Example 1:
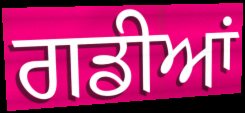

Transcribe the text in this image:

ਗਡੀਆਂ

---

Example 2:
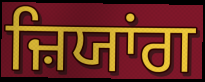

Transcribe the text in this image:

ਜ਼ਿਯਾਂਗ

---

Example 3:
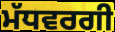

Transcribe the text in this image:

ਮੱਧਵਰਗੀ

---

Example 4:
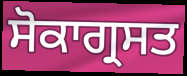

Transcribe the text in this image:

ਸੋਕਾਗ੍ਰਸਤ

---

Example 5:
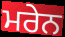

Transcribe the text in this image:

ਮਰੇਨ